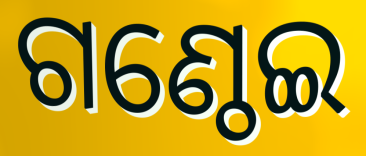
ଗଣ୍ଠେଇ